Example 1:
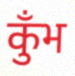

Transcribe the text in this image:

कुँभ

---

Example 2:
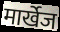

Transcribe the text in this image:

मार्खेज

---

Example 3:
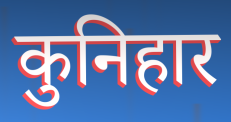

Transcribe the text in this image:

कुनिहार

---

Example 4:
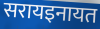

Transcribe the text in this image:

सरायइनायत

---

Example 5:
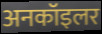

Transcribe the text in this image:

अनकॉइलर